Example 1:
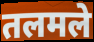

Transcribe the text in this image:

तलमले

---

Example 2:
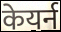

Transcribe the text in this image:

केयर्न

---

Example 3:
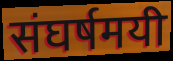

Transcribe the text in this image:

संघर्षमयी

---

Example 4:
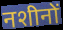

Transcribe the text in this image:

नशीनों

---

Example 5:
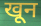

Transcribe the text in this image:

खून